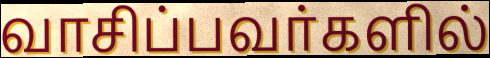
வாசிப்பவர்களில்